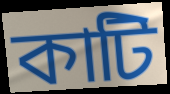
কাটি